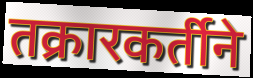
तक्रारकर्तीने